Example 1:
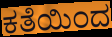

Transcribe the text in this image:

ಕತೆಯಿಂದ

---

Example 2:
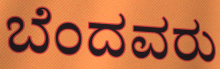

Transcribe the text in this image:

ಬೆಂದವರು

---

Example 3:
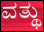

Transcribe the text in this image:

ವತ್ಥು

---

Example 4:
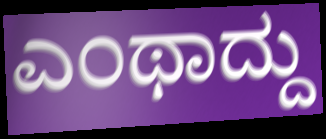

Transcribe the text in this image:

ಎಂಥಾದ್ದು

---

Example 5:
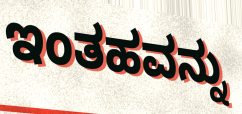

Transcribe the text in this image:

ಇಂತಹವನ್ನು